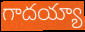
గాదయ్యా